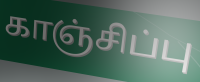
காஞ்சிப்பு